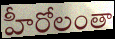
హీరోలంతా